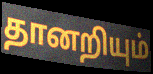
தானறியும்